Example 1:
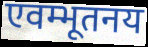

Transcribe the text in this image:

एवम्भूतनय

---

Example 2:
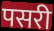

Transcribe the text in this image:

पसरी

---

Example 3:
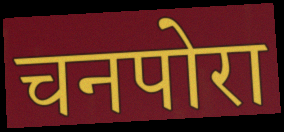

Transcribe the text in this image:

चनपोरा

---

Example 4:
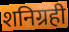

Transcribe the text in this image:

शनिग्रही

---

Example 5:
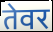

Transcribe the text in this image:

तेवर